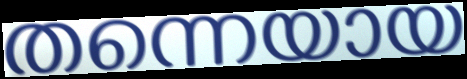
തന്നെയായ